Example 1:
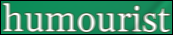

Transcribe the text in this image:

humourist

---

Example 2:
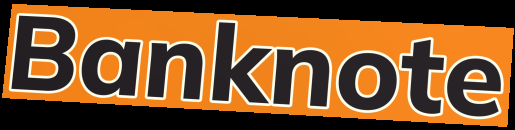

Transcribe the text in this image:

Banknote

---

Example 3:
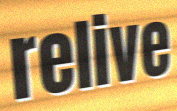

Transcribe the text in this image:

relive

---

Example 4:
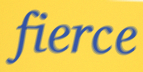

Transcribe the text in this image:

fierce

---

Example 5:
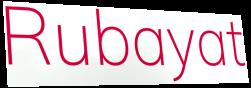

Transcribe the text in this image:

Rubayat